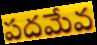
పదమేవ